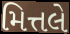
મિત્તલે